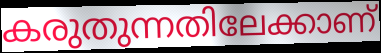
കരുതുന്നതിലേക്കാണ്